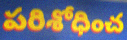
పరిశోధించ